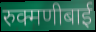
रुक्मणीबाई